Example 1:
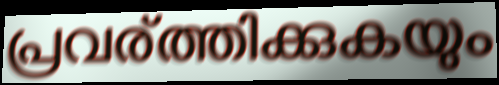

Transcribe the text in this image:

പ്രവര്ത്തിക്കുകയും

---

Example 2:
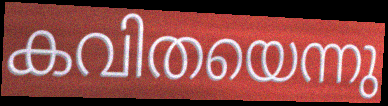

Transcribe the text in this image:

കവിതയെന്നു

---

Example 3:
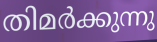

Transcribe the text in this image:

തിമർക്കുന്നു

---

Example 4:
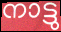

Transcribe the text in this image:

നാട്ടു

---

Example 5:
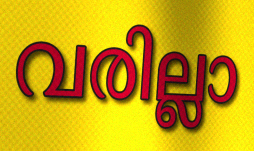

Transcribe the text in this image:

വരില്ലാ